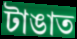
টাঙাত